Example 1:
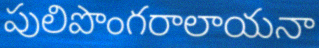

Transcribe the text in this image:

పులిపొంగరాలాయనా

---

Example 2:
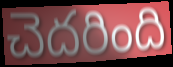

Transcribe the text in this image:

చెదరింది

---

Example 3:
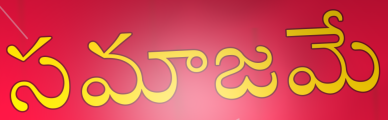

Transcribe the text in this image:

సమాజమే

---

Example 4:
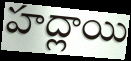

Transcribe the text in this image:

హద్లాయి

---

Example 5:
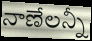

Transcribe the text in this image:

నాణేలన్నీ